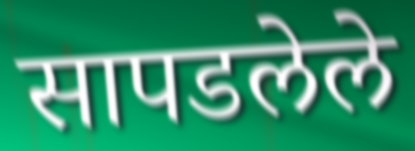
सापडलेले